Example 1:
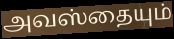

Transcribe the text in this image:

அவஸ்தையும்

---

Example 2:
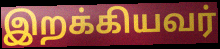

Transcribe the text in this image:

இறக்கியவர்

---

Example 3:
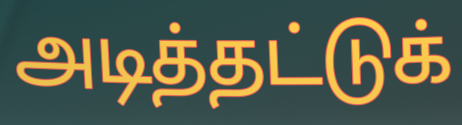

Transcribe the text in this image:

அடித்தட்டுக்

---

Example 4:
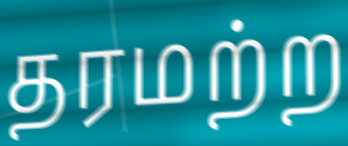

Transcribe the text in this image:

தரமற்ற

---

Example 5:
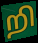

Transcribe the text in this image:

றி